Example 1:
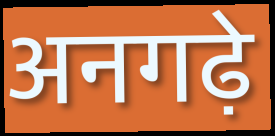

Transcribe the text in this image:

अनगढ़े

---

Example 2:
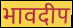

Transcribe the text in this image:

भावदीप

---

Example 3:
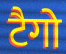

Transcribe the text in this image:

टैगो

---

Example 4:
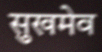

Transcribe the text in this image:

सुखमेव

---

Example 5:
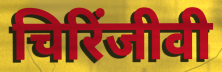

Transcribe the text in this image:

चिरिंजीवी